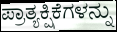
ಪ್ರಾತ್ಯಕ್ಷಿಕೆಗಳನ್ನು